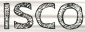
ISCO